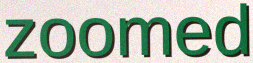
zoomed